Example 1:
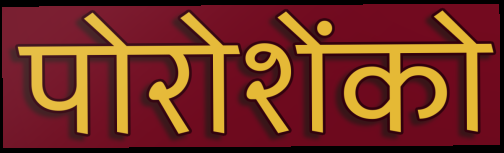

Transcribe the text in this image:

पोरोशेंको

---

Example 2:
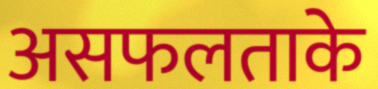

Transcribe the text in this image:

असफलताके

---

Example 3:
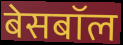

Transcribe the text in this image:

बेसबॉल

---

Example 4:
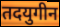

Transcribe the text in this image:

तदयुगीन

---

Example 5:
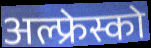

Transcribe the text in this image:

अल्फ्रेस्को